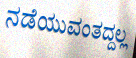
ನಡೆಯುವಂತದ್ದಲ್ಲ